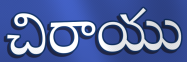
చిరాయు